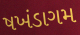
ષખંડાગમ